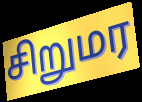
சிறுமர